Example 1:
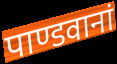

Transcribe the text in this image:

पाण्डवानां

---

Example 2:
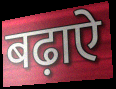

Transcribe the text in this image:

बढ़ाऐ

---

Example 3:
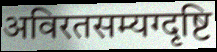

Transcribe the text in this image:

अविरतसम्यग्दृष्टि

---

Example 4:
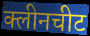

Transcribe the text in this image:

क्लीनचीट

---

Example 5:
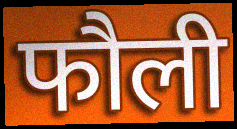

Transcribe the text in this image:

फौली